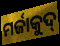
ମର୍ଜାକୁଦ୍